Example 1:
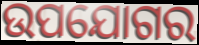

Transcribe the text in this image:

ଉପଯୋଗର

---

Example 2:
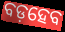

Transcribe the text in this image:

ବଡ଼ହେବ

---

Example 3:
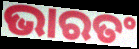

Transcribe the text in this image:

ଭାରତଂ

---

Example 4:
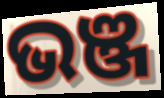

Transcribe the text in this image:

ଭଞ୍ଜ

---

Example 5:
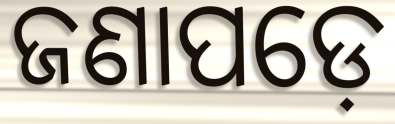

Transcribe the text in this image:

ଜଣାପଡ଼େ